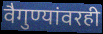
वैगुण्यांवरही